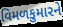
વિમળકુમારને